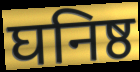
घनिष्ठ